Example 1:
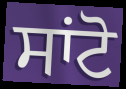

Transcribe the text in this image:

ਸਾਂਟੋ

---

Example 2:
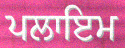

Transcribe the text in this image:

ਪਲਾਇਮ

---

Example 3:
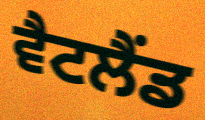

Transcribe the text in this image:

ਵੈਟਲੈਂਡ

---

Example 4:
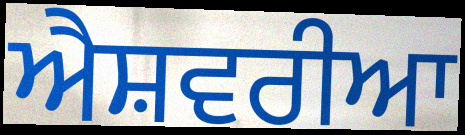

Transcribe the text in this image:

ਐਸ਼ਵਰੀਆ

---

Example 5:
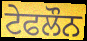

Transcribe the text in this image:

ਟੇਫਲੌਨ